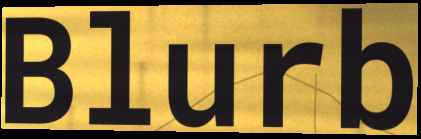
Blurb